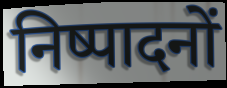
निष्पादनों